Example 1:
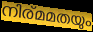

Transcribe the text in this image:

നിര്മമതയും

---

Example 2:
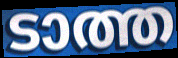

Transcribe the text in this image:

ടാത്ത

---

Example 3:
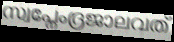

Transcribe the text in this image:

സ്വപ്നേംദ്രജാലവത്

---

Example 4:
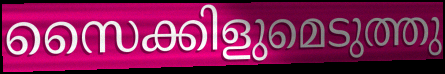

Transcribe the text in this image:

സൈക്കിളുമെടുത്തു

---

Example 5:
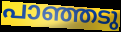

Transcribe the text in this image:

പാഞ്ഞടു